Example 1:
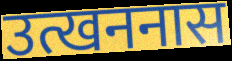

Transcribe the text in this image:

उत्खननास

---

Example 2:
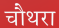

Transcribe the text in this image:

चौथरा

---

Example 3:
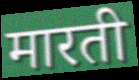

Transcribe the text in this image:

मारती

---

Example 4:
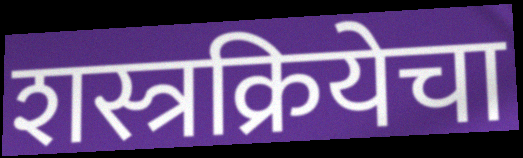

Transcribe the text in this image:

शस्त्रक्रियेचा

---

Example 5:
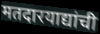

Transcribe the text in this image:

मतदारयाद्यांची